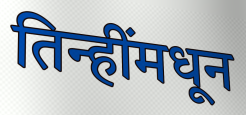
तिन्हींमधून